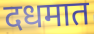
दधमात